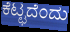
ಕೆಟ್ಟದೆಂದು